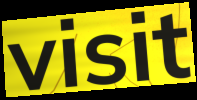
visit